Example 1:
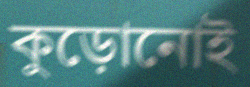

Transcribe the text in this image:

কুড়োনোই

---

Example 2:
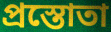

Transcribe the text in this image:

প্রস্তোতা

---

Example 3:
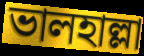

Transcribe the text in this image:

ভালহাল্লা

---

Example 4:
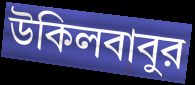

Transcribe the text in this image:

উকিলবাবুর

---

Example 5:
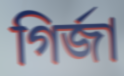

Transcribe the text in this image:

গির্জা